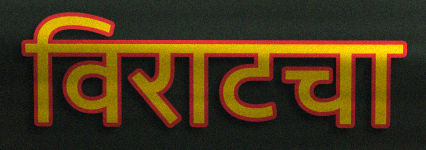
विराटचा